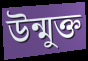
উন্মুক্ত